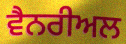
ਵੈਨਰੀਅਲ